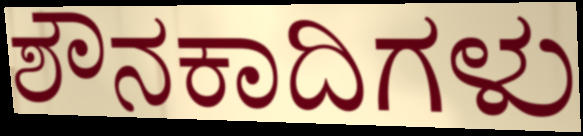
ಶೌನಕಾದಿಗಳು